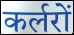
कर्लरों